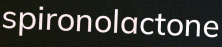
spironolactone